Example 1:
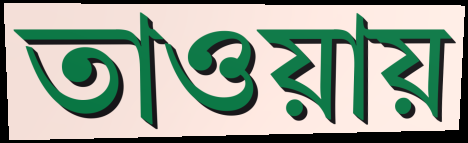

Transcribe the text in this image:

তাওয়ায়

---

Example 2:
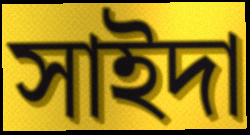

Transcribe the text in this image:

সাইদা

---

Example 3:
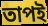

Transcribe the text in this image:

তাপই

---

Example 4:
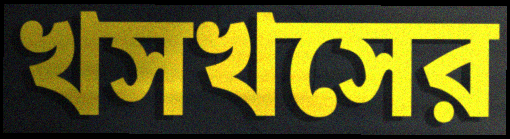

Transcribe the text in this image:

খসখসের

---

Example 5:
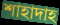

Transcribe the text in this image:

শাহাদাহ